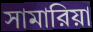
সামারিয়া